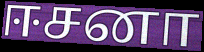
ஈசனா